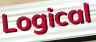
Logical